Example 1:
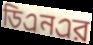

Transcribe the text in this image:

ডিএনএর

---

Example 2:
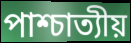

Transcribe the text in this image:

পাশ্চাত্যীয়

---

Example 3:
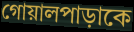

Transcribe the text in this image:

গোয়ালপাড়াকে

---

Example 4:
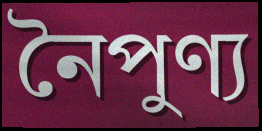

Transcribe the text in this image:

নৈপুণ্য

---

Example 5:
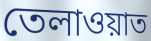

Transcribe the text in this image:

তেলাওয়াত